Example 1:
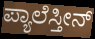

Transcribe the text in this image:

ಪ್ಯಾಲೆಸ್ತೀನ್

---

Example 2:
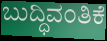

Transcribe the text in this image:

ಬುದ್ಧಿವಂತಿಕೆ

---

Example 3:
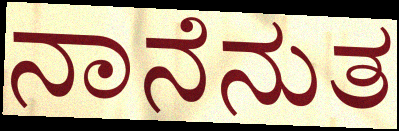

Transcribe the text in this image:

ನಾನೆನುತ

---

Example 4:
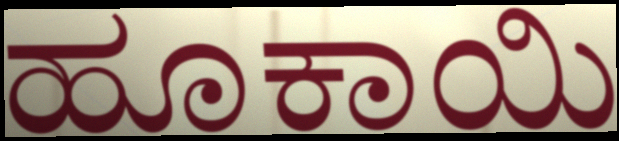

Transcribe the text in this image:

ಹೂಕಾಯಿ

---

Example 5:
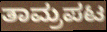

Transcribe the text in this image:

ತಾಮ್ರಪಟ